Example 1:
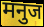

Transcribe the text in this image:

मनुज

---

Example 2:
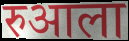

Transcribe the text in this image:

रुआला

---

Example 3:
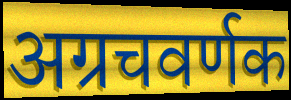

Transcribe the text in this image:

अग्रचवर्णक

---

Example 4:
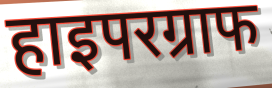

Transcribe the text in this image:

हाइपरग्राफ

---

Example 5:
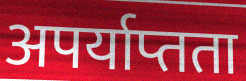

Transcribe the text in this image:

अपर्याप्‍तता